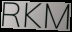
RKM